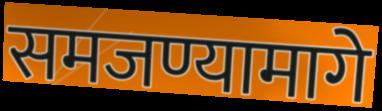
समजण्यामागे